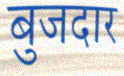
बुजदार